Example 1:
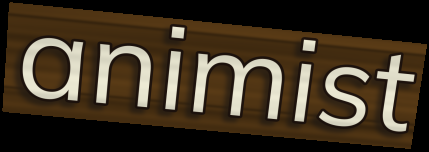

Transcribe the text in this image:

animist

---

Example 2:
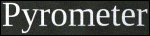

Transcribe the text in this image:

Pyrometer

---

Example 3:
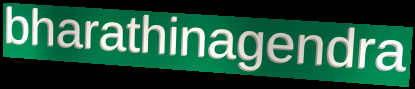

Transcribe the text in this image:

bharathinagendra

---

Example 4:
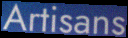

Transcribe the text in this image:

Artisans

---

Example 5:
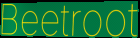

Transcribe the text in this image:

Beetroot